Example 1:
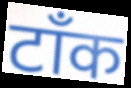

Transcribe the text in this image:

टॉंक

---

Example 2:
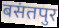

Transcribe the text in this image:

बसंतपुर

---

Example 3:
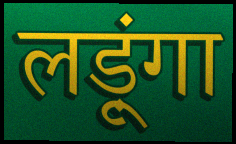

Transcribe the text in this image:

लड़ूंगा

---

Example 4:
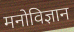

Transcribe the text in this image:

मनोविज्ञान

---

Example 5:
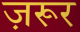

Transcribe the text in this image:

ज़रूर